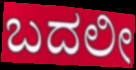
ಬದಲೀ